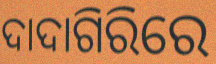
ଦାଦାଗିରିରେ